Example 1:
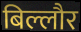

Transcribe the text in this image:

बिल्लौर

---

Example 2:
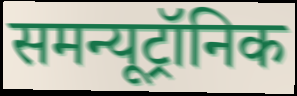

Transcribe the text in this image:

समन्यूट्रॉनिक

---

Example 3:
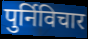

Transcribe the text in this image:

पुर्निविचार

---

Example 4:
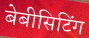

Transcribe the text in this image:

बेबीसिटिंग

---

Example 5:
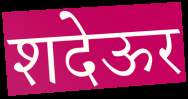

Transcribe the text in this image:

शदेऊर